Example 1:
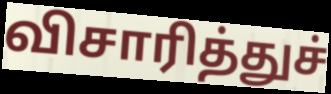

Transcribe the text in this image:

விசாரித்துச்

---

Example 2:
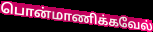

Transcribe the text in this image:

பொன்மாணிக்கவேல்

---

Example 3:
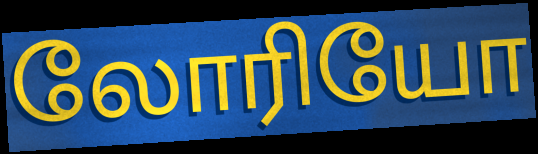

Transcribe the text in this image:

லோரியோ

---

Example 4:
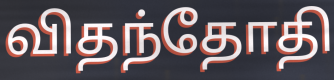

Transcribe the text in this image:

விதந்தோதி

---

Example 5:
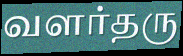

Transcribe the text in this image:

வளர்தரு